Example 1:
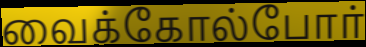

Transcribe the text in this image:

வைக்கோல்போர்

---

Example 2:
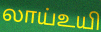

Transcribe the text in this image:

லாய்உயி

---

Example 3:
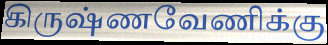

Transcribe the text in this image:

கிருஷ்ணவேணிக்கு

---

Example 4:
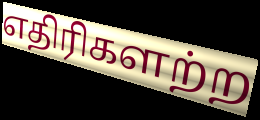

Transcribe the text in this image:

எதிரிகளற்ற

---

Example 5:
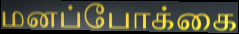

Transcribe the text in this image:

மனப்போக்கை